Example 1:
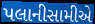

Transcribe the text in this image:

પલાનીસામીએ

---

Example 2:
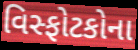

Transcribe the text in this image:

વિસ્ફોટકોના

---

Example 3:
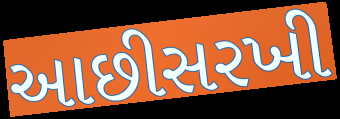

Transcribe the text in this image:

આછીસરખી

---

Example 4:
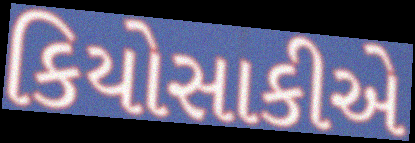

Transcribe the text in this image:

કિયોસાકીએ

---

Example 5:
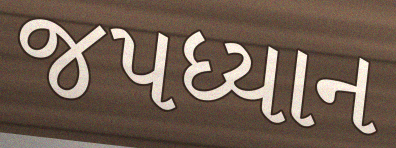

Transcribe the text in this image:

જપધ્યાન